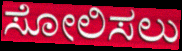
ಸೋಲಿಸಲು